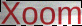
Xoom